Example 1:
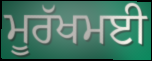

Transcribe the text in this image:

ਮੂਰੱਖਮਈ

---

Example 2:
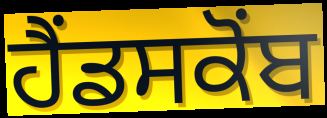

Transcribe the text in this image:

ਹੈਂਡਸਕੋਂਬ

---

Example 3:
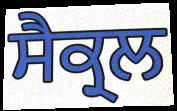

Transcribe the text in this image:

ਸੈਕ੍ਰਲ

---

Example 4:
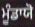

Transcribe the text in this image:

ਮੂੰਡਾਯੋ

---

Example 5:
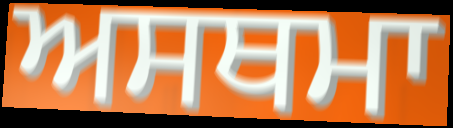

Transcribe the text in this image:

ਅਸਥਮਾ